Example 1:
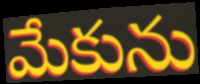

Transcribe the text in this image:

మేకును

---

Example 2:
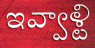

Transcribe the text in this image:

ఇవ్వాళ్టి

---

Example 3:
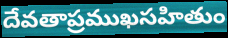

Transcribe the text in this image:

దేవతాప్రముఖసహితుం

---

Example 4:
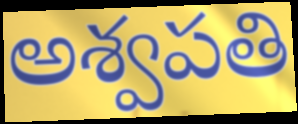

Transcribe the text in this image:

అశ్వపతి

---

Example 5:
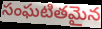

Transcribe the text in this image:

సంఘటితమైన